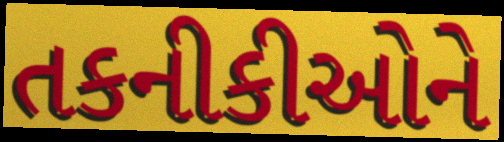
તકનીકીઓને